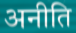
अनीति